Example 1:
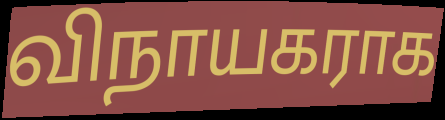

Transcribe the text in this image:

விநாயகராக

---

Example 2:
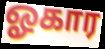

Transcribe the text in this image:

ஓகார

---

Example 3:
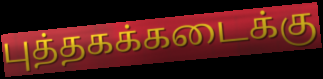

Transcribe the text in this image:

புத்தகக்கடைக்கு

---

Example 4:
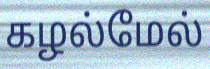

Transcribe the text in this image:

கழல்மேல்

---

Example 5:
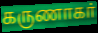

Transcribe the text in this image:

கருணாகர்